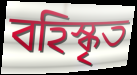
বহিস্কৃত